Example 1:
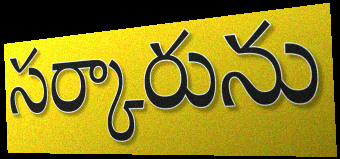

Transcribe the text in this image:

సర్కారును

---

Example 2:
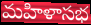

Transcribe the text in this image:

మహిళాసభ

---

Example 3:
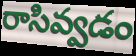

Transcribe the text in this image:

రాసివ్వడం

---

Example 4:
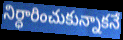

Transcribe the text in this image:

నిర్ధారించుకున్నాకనే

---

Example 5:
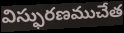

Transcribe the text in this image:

విస్ఫురణముచేత